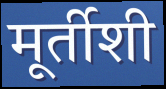
मूर्तीशी